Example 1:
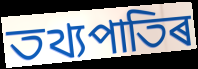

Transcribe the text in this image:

তথ্যপাতিৰ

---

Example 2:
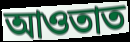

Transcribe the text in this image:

আওতাত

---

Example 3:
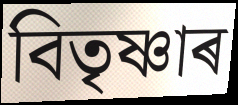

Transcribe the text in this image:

বিতৃষ্ণাৰ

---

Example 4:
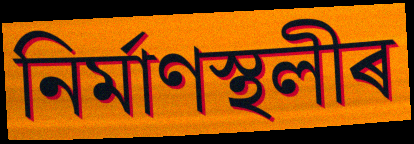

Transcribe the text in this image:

নিৰ্মাণস্থলীৰ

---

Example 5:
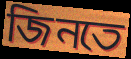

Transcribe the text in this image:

জিনতে